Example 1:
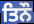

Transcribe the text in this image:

ਤਿਨੌ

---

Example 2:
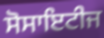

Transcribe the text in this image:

ਸੋਸਾਇਟੀਜ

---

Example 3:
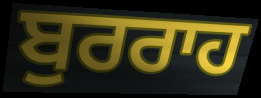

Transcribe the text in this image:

ਬੁਰਰਾਹ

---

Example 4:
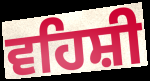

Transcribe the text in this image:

ਵਹਿਸ਼ੀ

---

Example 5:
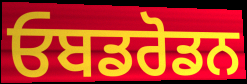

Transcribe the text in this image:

ਓਬਡਰੋਡਨ